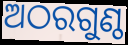
ଅଠରଗୁଣ୍ଠ